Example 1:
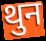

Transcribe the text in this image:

थुन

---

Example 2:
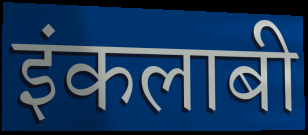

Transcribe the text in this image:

इंकलाबी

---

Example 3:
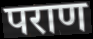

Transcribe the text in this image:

पराण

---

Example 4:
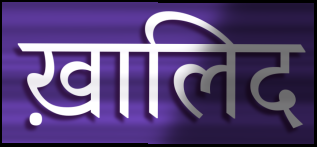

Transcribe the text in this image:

ख़ालिद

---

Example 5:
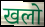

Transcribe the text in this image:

खलो